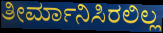
ತೀರ್ಮಾನಿಸಿರಲಿಲ್ಲ